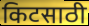
किटसाठी